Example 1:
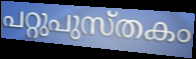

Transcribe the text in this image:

പറ്റുപുസ്തകം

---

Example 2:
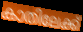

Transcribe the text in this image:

കാതിലേക്ക്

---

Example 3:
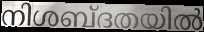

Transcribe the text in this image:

നിശബ്ദതയിൽ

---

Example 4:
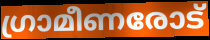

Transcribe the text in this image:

ഗ്രാമീണരോട്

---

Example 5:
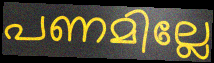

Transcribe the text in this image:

പണമില്ലേ